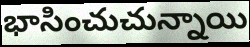
భాసించుచున్నాయి